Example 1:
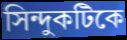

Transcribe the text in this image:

সিন্দুকটিকে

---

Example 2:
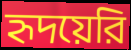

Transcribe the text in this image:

হৃদয়েরি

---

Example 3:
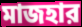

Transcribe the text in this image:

মাজহার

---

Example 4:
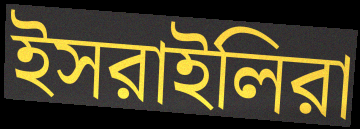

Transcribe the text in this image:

ইসরাইলিরা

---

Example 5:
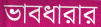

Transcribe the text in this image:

ভাবধারার